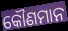
କୌଣମାନ